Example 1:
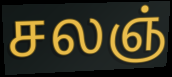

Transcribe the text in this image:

சலஞ்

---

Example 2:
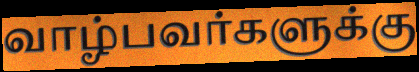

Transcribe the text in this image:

வாழ்பவர்களுக்கு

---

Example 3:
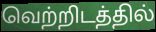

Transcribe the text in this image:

வெற்றிடத்தில்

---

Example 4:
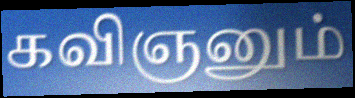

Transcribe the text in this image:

கவிஞனும்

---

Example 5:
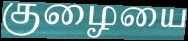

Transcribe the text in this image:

குழையை